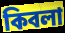
কিবলা